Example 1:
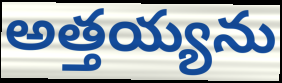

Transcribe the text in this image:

అత్తయ్యను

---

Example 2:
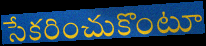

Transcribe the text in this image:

సేకరించుకొంటూ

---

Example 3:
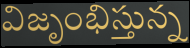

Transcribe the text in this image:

విజృంభిస్తున్న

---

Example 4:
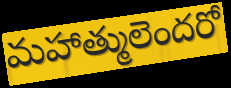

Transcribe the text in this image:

మహాత్ములెందరో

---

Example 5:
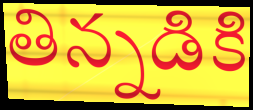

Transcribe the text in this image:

తిన్నడికి